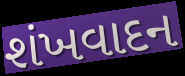
શંખવાદન